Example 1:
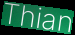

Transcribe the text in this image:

Thian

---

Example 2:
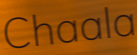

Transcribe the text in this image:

Chaala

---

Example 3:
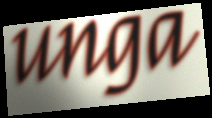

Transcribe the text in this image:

unga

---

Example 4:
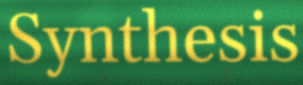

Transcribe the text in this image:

Synthesis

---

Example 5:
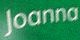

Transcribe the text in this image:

Joanna